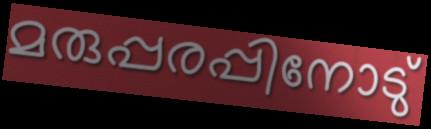
മരുപ്പരപ്പിനോടു്